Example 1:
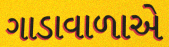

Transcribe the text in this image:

ગાડાવાળાએ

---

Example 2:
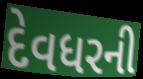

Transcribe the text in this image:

દેવધરની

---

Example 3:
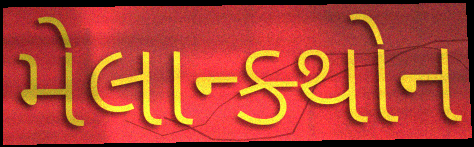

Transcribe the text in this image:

મેલાન્ક્થોન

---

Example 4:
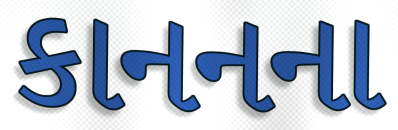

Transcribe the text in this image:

કાનનના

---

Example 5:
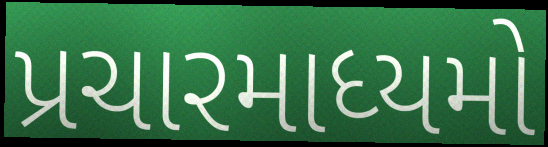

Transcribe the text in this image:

પ્રચારમાધ્યમો